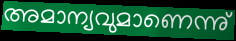
അമാന്യവുമാണെന്നു്